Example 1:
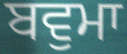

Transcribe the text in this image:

ਬਵੁਮਾ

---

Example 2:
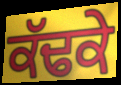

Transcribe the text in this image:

ਕੱਢਕੇ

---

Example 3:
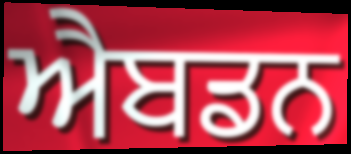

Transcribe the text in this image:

ਐਬਡਨ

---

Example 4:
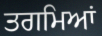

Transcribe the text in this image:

ਤਗਮਿਆਂ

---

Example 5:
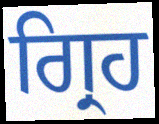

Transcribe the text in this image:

ਗ੍ਰਿਹ